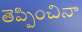
తెప్పించినా